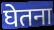
घेतना